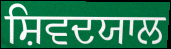
ਸ਼ਿਵਦਯਾਲ